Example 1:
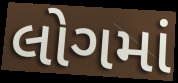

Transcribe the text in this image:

લોગમાં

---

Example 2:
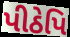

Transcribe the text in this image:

પીઠેપિ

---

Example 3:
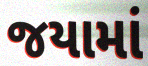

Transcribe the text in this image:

જયામાં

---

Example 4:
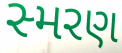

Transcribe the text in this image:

સ્મરણ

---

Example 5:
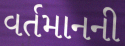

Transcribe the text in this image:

વર્તમાનની